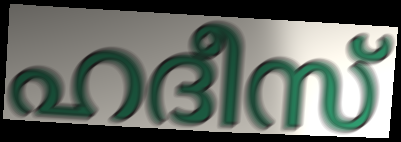
ഹദീസ്